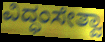
ವಿದ್ಧಂಸೇತ್ವಾ